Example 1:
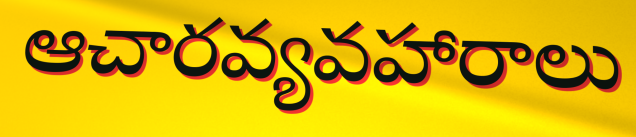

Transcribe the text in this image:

ఆచారవ్యవహారాలు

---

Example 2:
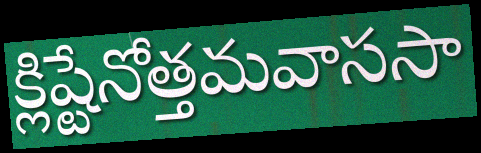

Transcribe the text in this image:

క్లిష్టేనోత్తమవాససా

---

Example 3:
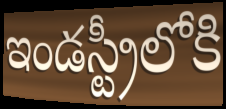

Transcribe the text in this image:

ఇండస్ట్రీలోకి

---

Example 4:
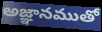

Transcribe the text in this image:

అజ్ఞానముతో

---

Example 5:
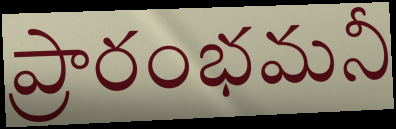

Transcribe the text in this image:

ప్రారంభమనీ